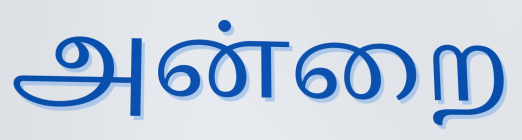
அன்றை